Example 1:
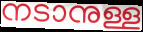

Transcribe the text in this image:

നടാനുള്ള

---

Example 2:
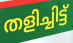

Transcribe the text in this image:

തളിച്ചിട്ട്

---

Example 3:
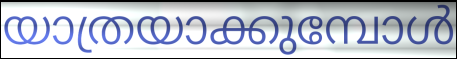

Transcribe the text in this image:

യാത്രയാക്കുമ്പോൾ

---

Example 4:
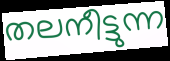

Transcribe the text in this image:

തലനീട്ടുന്ന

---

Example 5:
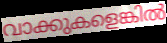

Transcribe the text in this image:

വാക്കുകളെങ്കിൽ